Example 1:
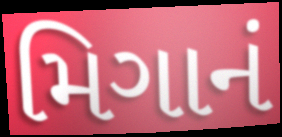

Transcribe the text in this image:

મિગાનં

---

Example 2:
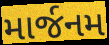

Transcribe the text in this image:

માર્જનમ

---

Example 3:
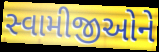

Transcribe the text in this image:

સ્વામીજીઓને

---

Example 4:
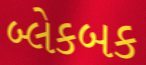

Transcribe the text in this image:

બ્લેકબક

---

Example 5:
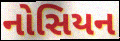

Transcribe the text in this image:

નોસિયન